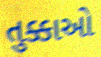
તુક્કાઓ